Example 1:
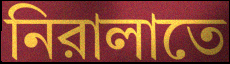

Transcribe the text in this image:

নিরালাতে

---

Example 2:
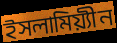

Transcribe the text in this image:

ইসলামিয়্যীন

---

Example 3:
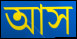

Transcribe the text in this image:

আস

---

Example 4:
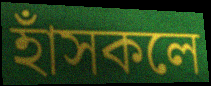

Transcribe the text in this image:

হাঁসকলে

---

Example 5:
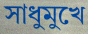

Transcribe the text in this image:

সাধুমুখে